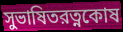
সুভাষিতরত্নকোষ